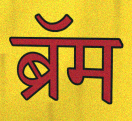
ब्रॅम